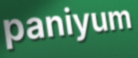
paniyum